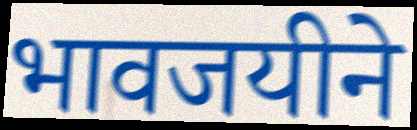
भावजयीने